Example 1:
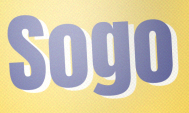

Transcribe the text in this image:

Sogo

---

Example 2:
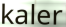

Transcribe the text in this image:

kaler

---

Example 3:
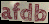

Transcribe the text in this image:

afdb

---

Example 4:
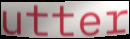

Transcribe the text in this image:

utter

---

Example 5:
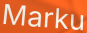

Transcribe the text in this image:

Marku